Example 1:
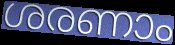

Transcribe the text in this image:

ശരണാം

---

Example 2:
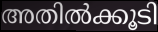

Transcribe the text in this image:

അതിൽക്കൂടി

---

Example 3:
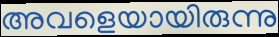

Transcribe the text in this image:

അവളെയായിരുന്നു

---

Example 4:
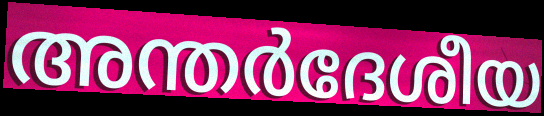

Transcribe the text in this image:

അന്തർദേശീയ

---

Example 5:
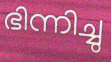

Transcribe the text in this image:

ഭിന്നിച്ചു